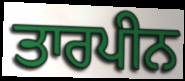
ਤਾਰਪੀਨ